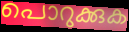
പൊറുക്കുക